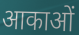
आकाओं